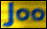
Joo